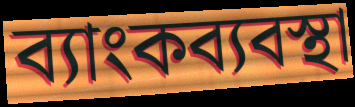
ব্যাংকব্যবস্থা